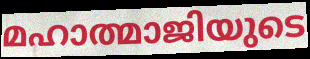
മഹാത്മാജിയുടെ